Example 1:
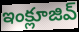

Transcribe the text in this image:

ఇంక్లూజివ్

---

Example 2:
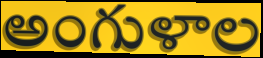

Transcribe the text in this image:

అంగుళాల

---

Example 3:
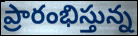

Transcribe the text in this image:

ప్రారంభిస్తున్న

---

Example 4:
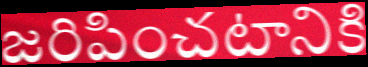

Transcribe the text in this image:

జరిపించటానికి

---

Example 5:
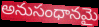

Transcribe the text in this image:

అనుసంధానమై